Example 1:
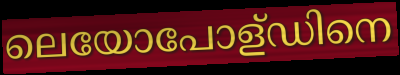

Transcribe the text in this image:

ലെയോപോള്ഡിനെ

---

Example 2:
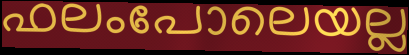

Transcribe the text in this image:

ഫലംപോലെയല്ല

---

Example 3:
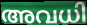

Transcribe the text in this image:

അവധി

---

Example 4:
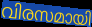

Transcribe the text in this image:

വിരസമായി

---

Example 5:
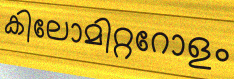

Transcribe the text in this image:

കിലോമിറ്ററോളം